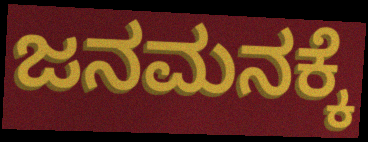
ಜನಮನಕ್ಕೆ